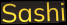
Sashi